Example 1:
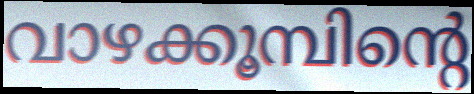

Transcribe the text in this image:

വാഴക്കൂമ്പിന്റെ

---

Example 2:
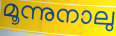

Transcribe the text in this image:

മൂന്നുനാലു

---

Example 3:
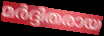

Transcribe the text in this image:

മർദ്ദിതരായ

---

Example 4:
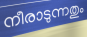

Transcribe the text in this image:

നീരാടുന്നതും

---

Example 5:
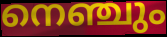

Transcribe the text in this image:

നെഞ്ചും